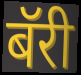
बॅरी